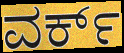
ವರ್ಕ್